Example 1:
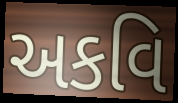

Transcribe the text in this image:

અકવિ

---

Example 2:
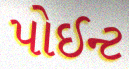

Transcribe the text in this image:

પોઈન્ટ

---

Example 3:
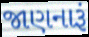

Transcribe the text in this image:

જાણનારૂં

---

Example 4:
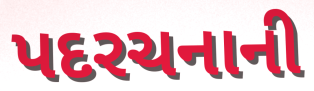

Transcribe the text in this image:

પદરચનાની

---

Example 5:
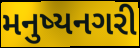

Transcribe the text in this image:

મનુષ્યનગરી